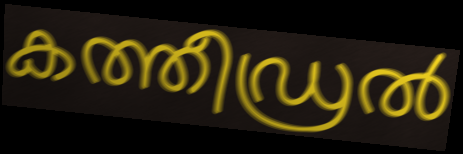
കത്തീഡ്രൽ